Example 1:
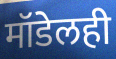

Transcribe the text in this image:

मॉडेलही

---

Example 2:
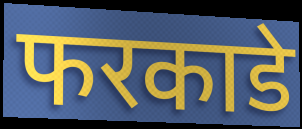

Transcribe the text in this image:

फरकाडे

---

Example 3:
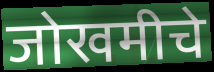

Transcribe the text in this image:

जोखमीचे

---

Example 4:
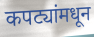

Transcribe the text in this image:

कपट्यांमधून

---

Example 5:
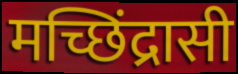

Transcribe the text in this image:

मच्छिंद्रासी